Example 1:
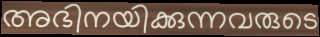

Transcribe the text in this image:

അഭിനയിക്കുന്നവരുടെ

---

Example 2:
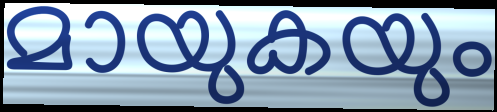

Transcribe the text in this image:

മായുകയും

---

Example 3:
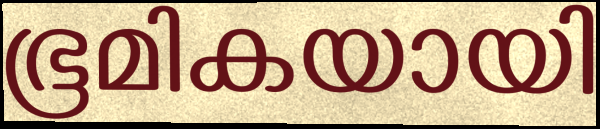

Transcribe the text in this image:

ഭൂമികയായി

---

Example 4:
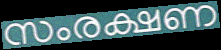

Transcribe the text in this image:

സംരക്ഷണ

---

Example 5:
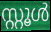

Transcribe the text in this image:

സ്റ്റൂൾ